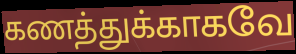
கணத்துக்காகவே